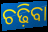
ଚଢ଼ିବା